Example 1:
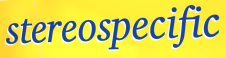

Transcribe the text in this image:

stereospecific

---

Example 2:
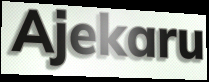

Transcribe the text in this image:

Ajekaru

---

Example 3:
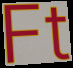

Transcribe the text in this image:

Ft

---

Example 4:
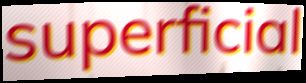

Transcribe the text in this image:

superficial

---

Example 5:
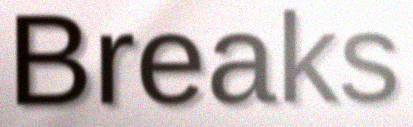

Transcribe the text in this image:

Breaks